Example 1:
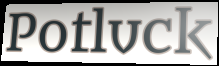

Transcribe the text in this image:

Potluck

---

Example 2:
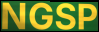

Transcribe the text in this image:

NGSP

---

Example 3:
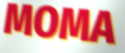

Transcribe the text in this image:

MOMA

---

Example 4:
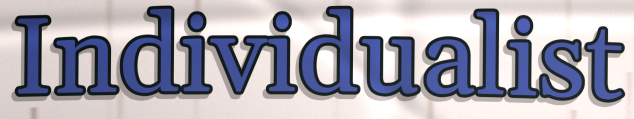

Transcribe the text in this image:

Individualist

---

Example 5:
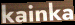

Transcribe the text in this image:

kainka